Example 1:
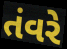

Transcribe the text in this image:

તંવરે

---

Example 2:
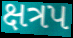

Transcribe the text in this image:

ક્ષત્રપ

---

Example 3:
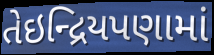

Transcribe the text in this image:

તેઇન્દ્રિયપણામાં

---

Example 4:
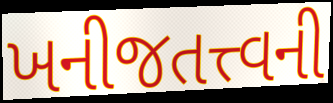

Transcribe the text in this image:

ખનીજતત્ત્વની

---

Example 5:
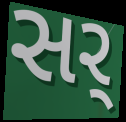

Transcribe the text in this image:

સર્